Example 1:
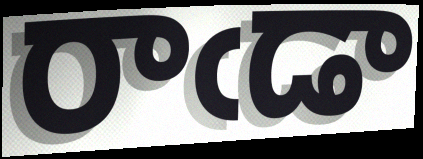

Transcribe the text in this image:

రాఁడా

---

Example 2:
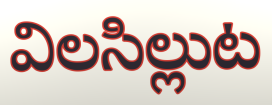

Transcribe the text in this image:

విలసిల్లుట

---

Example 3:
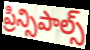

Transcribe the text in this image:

ప్రిన్సిపాల్స్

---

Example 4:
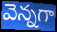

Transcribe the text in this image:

వెన్నగా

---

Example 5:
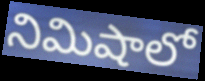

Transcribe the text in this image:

నిమిషాలో